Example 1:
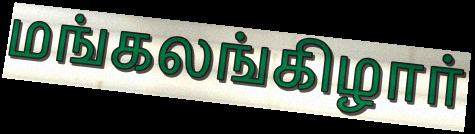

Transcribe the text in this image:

மங்கலங்கிழார்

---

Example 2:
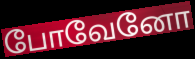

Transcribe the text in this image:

போவேனோ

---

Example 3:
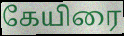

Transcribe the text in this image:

கேயிரை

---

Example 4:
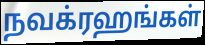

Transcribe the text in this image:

நவக்ரஹங்கள்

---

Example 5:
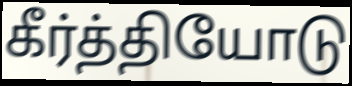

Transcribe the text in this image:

கீர்த்தியோடு